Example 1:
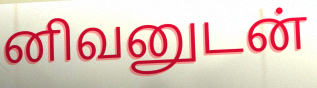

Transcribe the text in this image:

னிவனுடன்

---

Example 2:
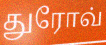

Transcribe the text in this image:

துரோவ்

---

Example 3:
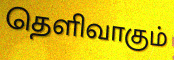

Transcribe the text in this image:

தெளிவாகும்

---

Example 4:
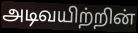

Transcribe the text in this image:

அடிவயிற்றின்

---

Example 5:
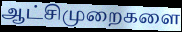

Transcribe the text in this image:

ஆட்சிமுறைகளை